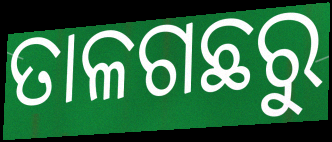
ତାଳଗଛରୁ